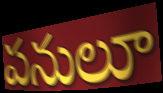
పనులూ